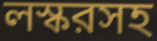
লস্করসহ